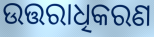
ଉତ୍ତରାଧିକରଣ